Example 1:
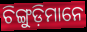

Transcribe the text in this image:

ଚିଙ୍ଗୁଡ଼ିମାନେ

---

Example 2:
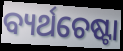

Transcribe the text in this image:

ବ୍ୟର୍ଥଚେଷ୍ଟା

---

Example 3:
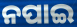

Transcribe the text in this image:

ନପାଇ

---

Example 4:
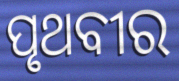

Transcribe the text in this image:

ପୃଥବୀର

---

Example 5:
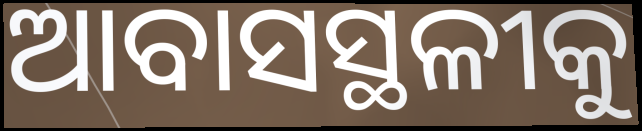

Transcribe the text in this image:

ଆବାସସ୍ଥଳୀକୁ